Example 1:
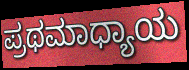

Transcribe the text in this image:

ಪ್ರಥಮಾಧ್ಯಾಯ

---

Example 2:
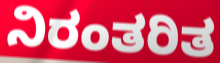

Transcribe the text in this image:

ನಿರಂತರಿತ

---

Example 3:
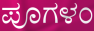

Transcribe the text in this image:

ಪೂಗಳಂ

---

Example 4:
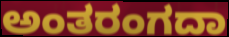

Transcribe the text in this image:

ಅಂತರಂಗದಾ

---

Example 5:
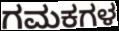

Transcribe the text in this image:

ಗಮಕಗಳ